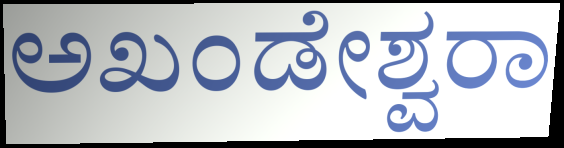
ಅಖಂಡೇಶ್ವರಾ